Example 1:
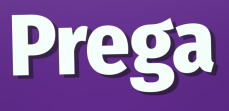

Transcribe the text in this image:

Prega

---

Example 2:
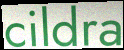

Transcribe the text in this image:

cildra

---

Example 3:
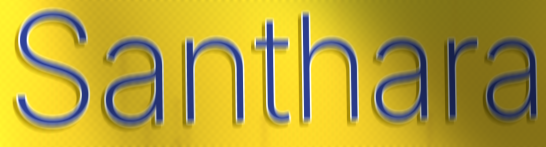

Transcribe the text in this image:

Santhara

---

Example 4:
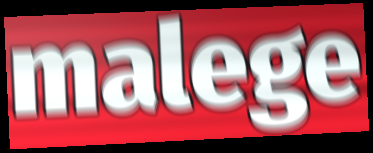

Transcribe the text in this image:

malege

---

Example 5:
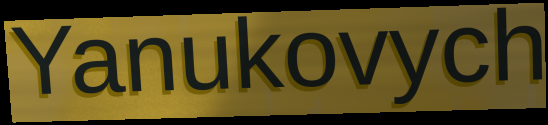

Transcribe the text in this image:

Yanukovych